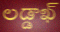
లడ్డాఖ్